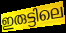
ഇരുട്ടിലെ